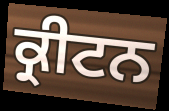
ਕ੍ਰੀਟਨ